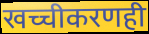
खच्चीकरणही